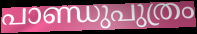
പാണ്ഡുപുത്രം